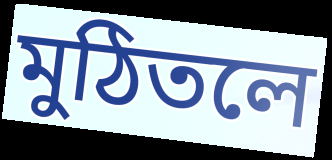
মুঠিতলে